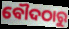
ବୌଦଠାରୁ